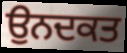
ਉਨਦਕਤ